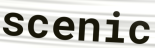
scenic